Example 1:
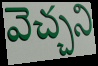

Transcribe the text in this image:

వెచ్చని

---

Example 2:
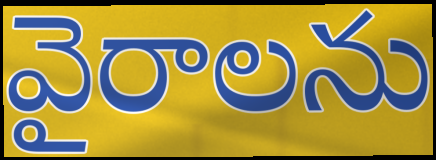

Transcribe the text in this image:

వైరాలను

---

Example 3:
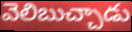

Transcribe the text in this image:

వెలిబుచ్చాడు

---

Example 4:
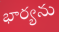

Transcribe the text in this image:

భార్యను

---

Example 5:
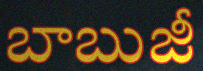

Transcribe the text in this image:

బాబుజీ